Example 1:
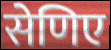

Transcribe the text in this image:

सेणिए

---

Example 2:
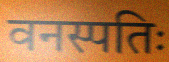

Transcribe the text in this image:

वनस्पतिः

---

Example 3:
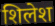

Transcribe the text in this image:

शिलेश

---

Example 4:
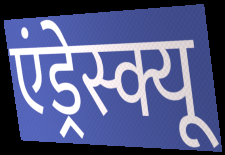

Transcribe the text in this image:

एंड्रेस्क्यू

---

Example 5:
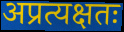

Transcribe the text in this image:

अप्रत्यक्षतः